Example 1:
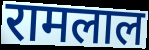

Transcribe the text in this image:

रामलाल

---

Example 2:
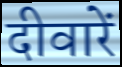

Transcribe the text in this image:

दीवारें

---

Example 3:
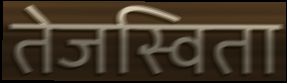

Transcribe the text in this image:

तेजस्विता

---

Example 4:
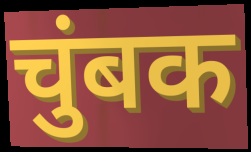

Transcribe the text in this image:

चुंबक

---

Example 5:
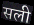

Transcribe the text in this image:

सली